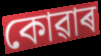
কোৱাৰ